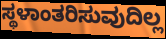
ಸ್ಥಳಾಂತರಿಸುವುದಿಲ್ಲ